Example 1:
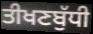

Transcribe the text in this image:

ਤੀਖਣਬੁੱਧੀ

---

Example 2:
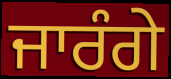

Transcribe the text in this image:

ਜਾਰੰਗੇ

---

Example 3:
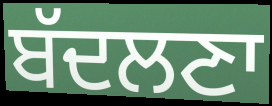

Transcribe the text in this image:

ਬੱਦਲਣਾ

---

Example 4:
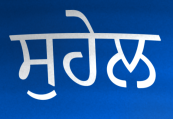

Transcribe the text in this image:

ਸੁਹੇਲ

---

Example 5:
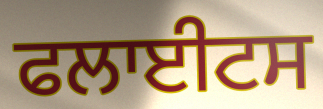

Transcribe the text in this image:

ਫਲਾਈਟਸ